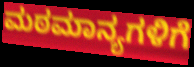
ಮಠಮಾನ್ಯಗಳಿಗೆ